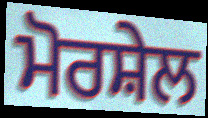
ਮੋਰਸ਼ੇਲ